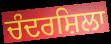
ਚੰਦਰਸ਼ਿਲਾ